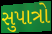
સુપાત્રો